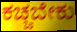
ಕಚ್ಚಬೇಕು